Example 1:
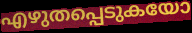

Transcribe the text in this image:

എഴുതപ്പെടുകയോ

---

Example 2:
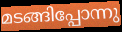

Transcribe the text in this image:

മടങ്ങിപ്പോന്നു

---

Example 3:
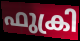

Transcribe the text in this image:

ഫുക്രി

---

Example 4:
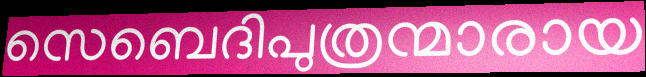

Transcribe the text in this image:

സെബെദിപുത്രന്മാരായ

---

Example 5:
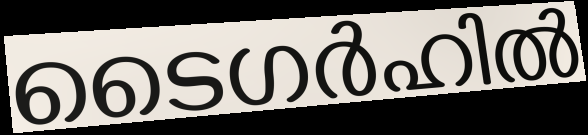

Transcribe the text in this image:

ടൈഗർഹിൽ